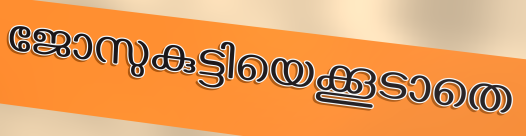
ജോസുകുട്ടിയെക്കൂടാതെ